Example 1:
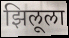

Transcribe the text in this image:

झिलूला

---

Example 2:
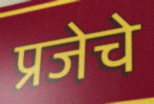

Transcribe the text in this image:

प्रजेचे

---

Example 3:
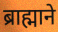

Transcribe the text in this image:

ब्राह्माने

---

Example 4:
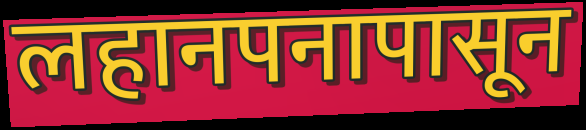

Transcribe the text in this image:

लहानपनापासून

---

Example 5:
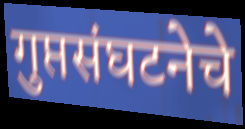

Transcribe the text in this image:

गुप्तसंघटनेचे